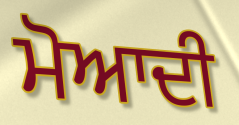
ਮੋਆਦੀ